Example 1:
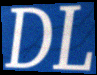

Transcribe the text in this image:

DL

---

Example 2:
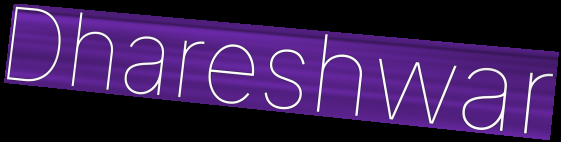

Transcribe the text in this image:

Dhareshwar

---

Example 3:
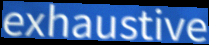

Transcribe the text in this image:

exhaustive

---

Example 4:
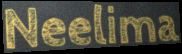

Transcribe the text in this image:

Neelima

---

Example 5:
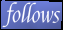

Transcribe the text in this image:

follows